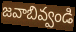
జవాబివ్వండి